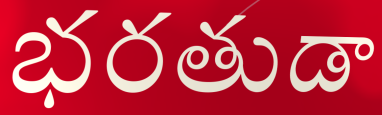
భరతుడా